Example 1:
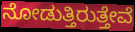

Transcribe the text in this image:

ನೋಡುತ್ತಿರುತ್ತೇವೆ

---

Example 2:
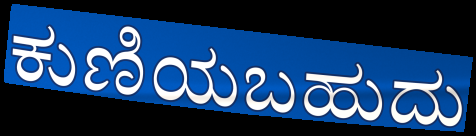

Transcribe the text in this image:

ಕುಣಿಯಬಹುದು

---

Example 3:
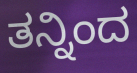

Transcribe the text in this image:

ತನ್ನಿಂದ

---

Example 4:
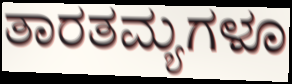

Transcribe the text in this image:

ತಾರತಮ್ಯಗಳೂ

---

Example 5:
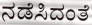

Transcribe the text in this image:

ನಡೆಸಿದಂತೆ